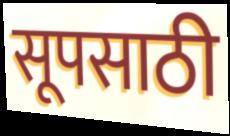
सूपसाठी